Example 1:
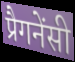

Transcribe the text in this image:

प्रैगनेंसी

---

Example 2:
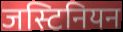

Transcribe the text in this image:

जस्टिनियन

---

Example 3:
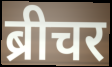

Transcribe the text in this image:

ब्रीचर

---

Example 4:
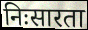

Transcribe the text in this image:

निःसारता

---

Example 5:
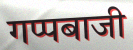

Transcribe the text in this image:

गप्पबाजी